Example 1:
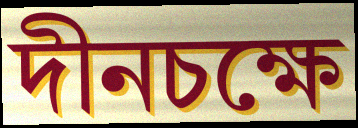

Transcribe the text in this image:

দীনচক্ষে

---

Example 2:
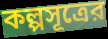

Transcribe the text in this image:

কল্পসূত্রের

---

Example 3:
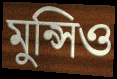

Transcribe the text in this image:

মুন্সিও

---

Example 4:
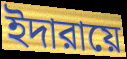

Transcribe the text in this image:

ইদারায়ে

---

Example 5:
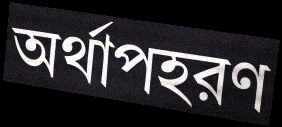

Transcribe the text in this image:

অর্থাপহরণ